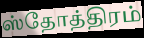
ஸ்தோத்திரம்